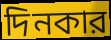
দিনকার